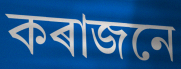
কৰাজনে